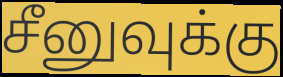
சீனுவுக்கு